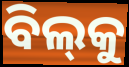
ବିଲ୍‌କୁ